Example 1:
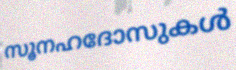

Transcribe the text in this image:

സൂനഹദോസുകൾ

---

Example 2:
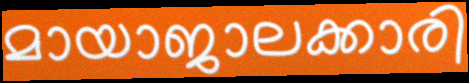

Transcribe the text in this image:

മായാജാലക്കാരി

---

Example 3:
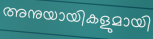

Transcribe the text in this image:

അനുയായികളുമായി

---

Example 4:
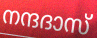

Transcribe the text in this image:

നന്ദദാസ്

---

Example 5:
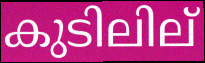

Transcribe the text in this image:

കുടിലില്